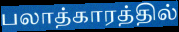
பலாத்காரத்தில்